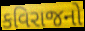
કવિરાજનો